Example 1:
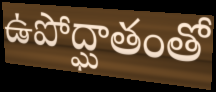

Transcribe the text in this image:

ఉపోద్ఘాతంతో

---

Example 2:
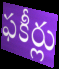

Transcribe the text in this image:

ఫకీర్లు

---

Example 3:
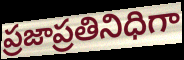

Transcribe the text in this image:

ప్రజాప్రతినిధిగా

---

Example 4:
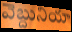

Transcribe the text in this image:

వెబ్దునియా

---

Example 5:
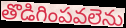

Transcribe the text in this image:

తొడిగింపవలెను